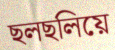
ছলছলিয়ে